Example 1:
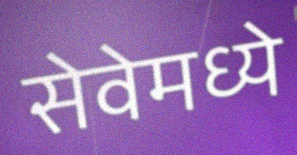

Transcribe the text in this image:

सेवेमध्ये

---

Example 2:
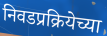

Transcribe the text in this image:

निवडप्रक्रियेच्या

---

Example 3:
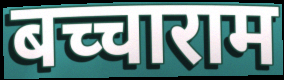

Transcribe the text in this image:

बच्चाराम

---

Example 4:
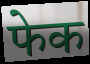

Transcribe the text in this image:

फेक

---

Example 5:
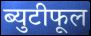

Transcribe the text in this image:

ब्युटीफूल